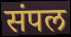
संपल